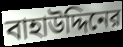
বাহাউদ্দিনের